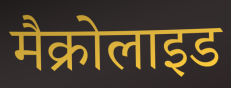
मैक्रोलाइड